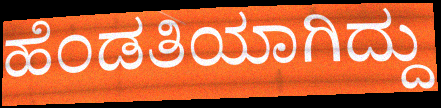
ಹೆಂಡತಿಯಾಗಿದ್ದು